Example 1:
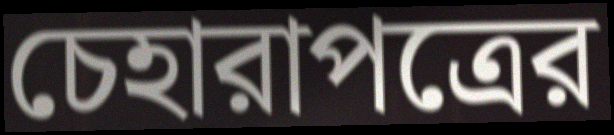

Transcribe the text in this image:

চেহারাপত্রের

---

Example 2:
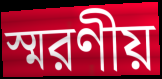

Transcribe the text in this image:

স্মরণীয়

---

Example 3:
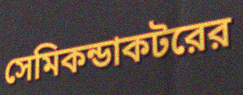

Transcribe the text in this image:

সেমিকন্ডাকটরের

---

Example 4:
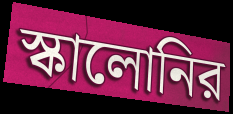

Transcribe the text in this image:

স্কালোনির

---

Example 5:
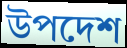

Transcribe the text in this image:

উপদেশ